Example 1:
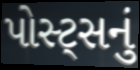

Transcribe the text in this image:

પોસ્ટ્સનું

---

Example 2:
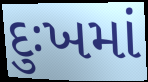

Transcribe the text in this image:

દુઃખમાં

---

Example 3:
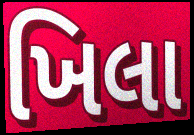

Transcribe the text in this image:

ખિલા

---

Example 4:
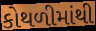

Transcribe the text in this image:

કોથળીમાંથી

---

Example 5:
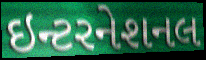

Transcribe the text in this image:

ઇન્ટરનેશનલ